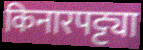
किनारपट्ट्या